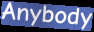
Anybody